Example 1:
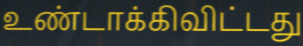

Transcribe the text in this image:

உண்டாக்கிவிட்டது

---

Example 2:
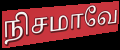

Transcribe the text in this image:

நிசமாவே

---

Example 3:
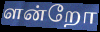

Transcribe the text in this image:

ளன்றோ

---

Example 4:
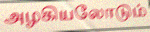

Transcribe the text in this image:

அழகியலோடும்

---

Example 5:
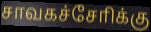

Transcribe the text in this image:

சாவகச்சேரிக்கு